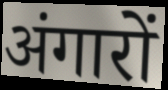
अंगारों